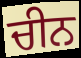
ਚੀਨ